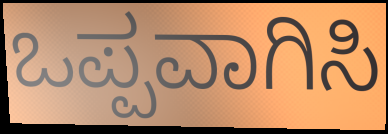
ಒಪ್ಪವಾಗಿಸಿ